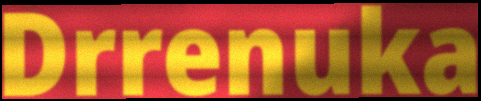
Drrenuka